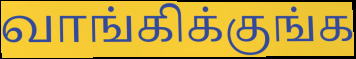
வாங்கிக்குங்க